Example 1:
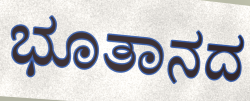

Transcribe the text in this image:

ಭೂತಾನದ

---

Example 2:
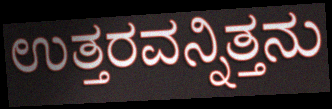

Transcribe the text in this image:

ಉತ್ತರವನ್ನಿತ್ತನು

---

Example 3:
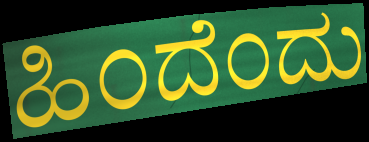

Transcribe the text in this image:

ಹಿಂದೆಂದು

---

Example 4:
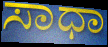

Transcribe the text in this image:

ಸಾಧಾ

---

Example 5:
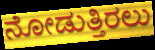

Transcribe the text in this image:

ನೋಡುತ್ತಿರಲು